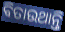
ବିତାଉଥାନ୍ତି